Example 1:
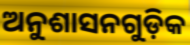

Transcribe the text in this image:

ଅନୁଶାସନଗୁଡ଼ିକ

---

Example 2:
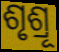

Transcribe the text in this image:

ଶୃଶ୍ରୂ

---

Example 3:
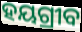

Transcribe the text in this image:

ହୟଗ୍ରୀବ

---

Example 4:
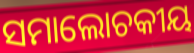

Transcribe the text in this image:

ସମାଲୋଚକୀୟ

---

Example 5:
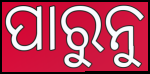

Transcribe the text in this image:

ପାରୁନୁ